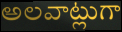
అలవాట్లుగా